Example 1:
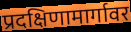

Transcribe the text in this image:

प्रदक्षिणामार्गावर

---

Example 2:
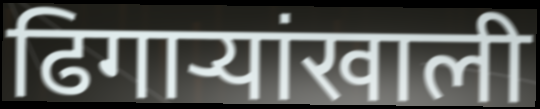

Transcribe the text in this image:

ढिगाऱ्यांखाली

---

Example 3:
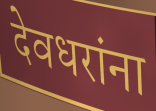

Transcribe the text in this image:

देवधरांना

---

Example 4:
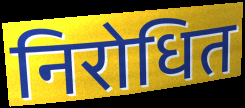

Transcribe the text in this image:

निरोधित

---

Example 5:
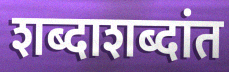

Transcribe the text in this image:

शब्दाशब्दांत